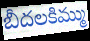
బీదలకిమ్ము